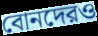
বোনদেরও